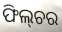
ଫିଲ୍‌ଚର